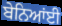
ਬੇਨਿਆਂਈ